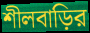
শীলবাড়ির